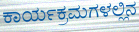
ಕಾರ್ಯಕ್ರಮಗಳಲ್ಲಿನ